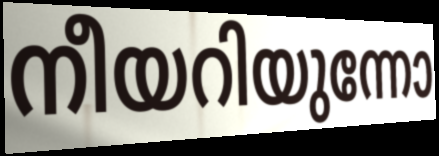
നീയറിയുന്നോ